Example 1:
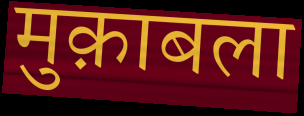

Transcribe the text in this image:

मुक़ाबला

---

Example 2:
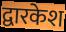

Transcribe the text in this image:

द्वारकेश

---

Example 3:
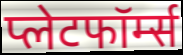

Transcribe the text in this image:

प्लेटफॉर्म्स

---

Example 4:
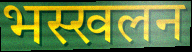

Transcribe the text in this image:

भस्खलन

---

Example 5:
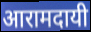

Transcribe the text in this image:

आरामदायी